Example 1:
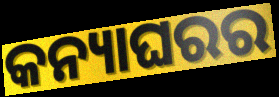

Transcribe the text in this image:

କନ୍ୟାଘରର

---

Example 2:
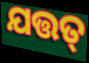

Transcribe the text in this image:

ଯତ୍ତତ୍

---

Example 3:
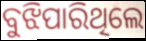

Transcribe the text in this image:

ବୁଝିପାରିଥିଲେ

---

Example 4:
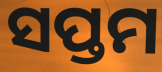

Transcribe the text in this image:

ସପ୍ତମ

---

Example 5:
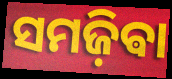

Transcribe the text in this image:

ସମଜ଼ିଵା